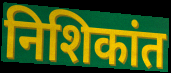
निशिकांत